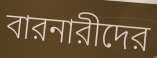
বারনারীদের